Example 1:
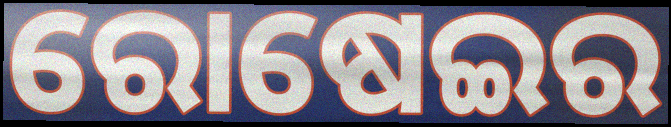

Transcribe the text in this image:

ରୋଷେଇର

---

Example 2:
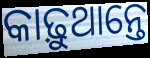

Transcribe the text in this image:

କାଢ଼ୁଥାନ୍ତେ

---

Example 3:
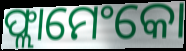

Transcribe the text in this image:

ଫ୍ଲାମେଂକୋ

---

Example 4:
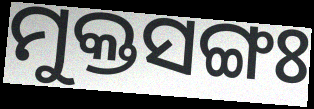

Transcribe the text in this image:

ମୁକ୍ତସଙ୍ଗଃ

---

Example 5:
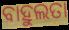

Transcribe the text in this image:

ବାହୁଲତା